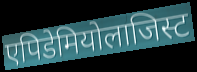
एपिडेमियोलाजिस्ट